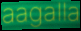
aagalla